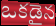
ఒకడైన